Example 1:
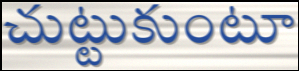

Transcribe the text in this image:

చుట్టుకుంటూ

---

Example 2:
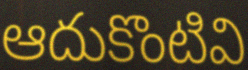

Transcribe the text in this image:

ఆదుకొంటివి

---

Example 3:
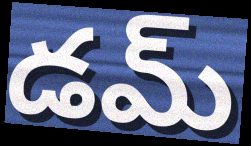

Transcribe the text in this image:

డమ్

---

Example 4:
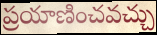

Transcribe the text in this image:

ప్రయాణించవచ్చు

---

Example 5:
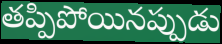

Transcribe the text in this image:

తప్పిపోయినప్పుడు